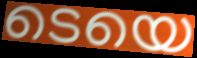
ടെയെ